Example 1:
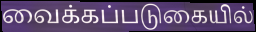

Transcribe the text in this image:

வைக்கப்படுகையில்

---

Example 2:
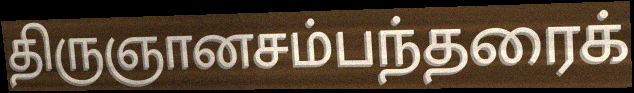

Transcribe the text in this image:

திருஞானசம்பந்தரைக்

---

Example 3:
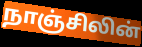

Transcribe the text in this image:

நாஞ்சிலின்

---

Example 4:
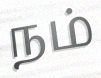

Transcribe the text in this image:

நம்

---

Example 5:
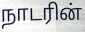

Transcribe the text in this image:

நாடரின்